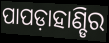
ପାପଡ଼ାହାଣ୍ଡିର